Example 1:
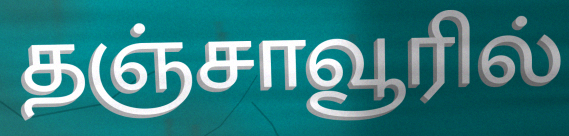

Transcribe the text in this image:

தஞ்சாவூரில்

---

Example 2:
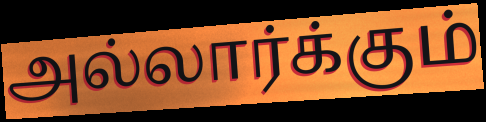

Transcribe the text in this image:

அல்லார்க்கும்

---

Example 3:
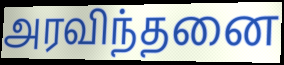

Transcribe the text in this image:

அரவிந்தனை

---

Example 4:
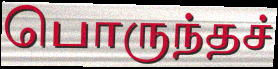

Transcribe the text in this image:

பொருந்தச்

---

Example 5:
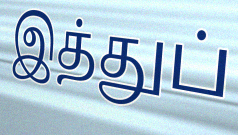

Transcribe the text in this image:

இத்துப்